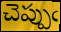
చెప్పుఁ